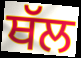
ਥੱਲ